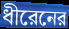
ধীরেনের